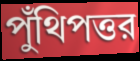
পুঁথিপত্তর